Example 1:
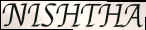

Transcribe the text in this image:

NISHTHA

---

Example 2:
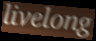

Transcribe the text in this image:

livelong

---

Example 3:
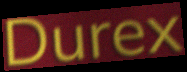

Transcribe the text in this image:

Durex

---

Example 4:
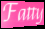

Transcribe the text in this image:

Fatty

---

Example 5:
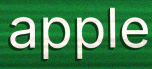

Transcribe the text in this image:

apple